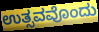
ಉತ್ಸವವೊಂದು